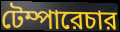
টেম্পারেচার